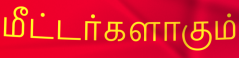
மீட்டர்களாகும்